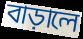
বাড়ালে